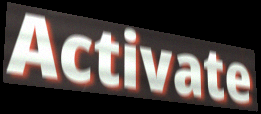
Activate